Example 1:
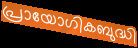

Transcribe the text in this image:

പ്രായോഗികബുദ്ധി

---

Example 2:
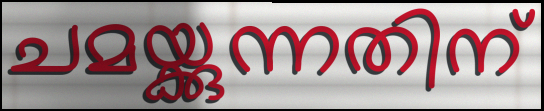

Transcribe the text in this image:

ചമയ്ക്കുന്നതിന്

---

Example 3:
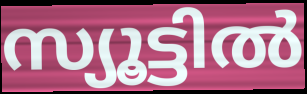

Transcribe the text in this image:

സ്യൂട്ടിൽ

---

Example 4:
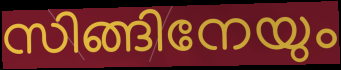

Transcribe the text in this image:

സിങ്ങിനേയും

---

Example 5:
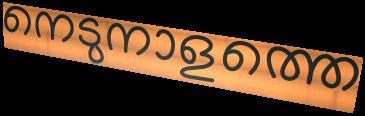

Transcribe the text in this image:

നെടുനാളത്തെ